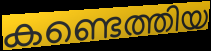
കണ്ടെത്തിയ